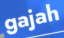
gajah